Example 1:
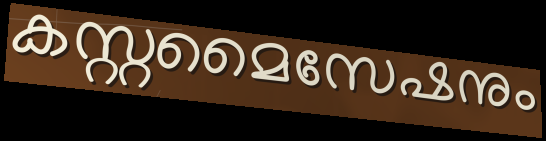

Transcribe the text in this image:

കസ്റ്റമൈസേഷനും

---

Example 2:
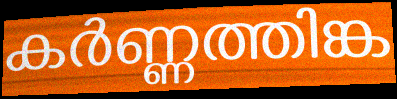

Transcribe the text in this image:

കർണ്ണത്തിങ്ക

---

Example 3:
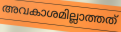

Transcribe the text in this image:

അവകാശമില്ലാത്തത്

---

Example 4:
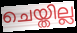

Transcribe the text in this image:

ചെയ്തില്ല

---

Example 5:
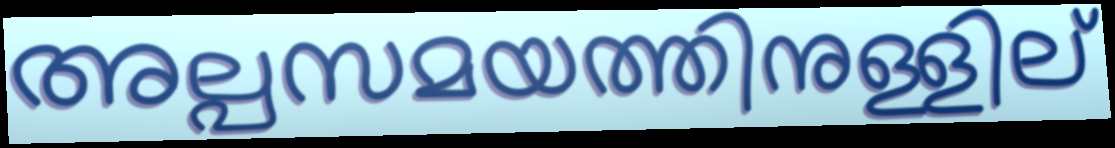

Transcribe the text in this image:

അല്പസമയത്തിനുള്ളില്